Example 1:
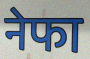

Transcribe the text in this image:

नेफा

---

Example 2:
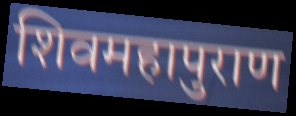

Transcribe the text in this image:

शिवमहापुराण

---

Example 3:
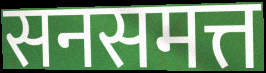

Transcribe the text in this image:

सनसमत्त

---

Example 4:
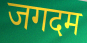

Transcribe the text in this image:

जगदम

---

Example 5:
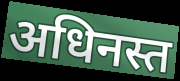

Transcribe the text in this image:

अधिनस्त